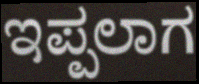
ಇಪ್ಪಲಾಗ